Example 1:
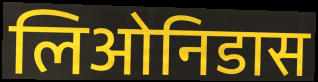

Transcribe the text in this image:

लिओनिडास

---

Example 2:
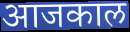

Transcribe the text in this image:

आजकाल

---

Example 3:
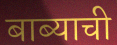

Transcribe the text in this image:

बाब्याची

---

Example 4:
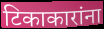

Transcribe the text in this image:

टिकाकारांना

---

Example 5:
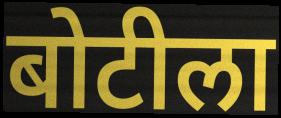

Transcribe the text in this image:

बोटीला